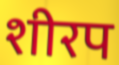
शीरप